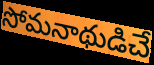
సోమనాథుడిచే